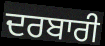
ਦਰਬਾਰੀ